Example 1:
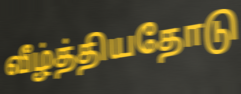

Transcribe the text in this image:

வீழ்த்தியதோடு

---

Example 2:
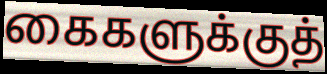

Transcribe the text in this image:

கைகளுக்குத்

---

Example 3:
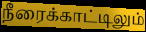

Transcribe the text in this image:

நீரைக்காட்டிலும்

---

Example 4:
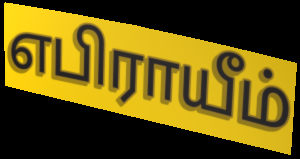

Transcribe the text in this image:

எபிராயீம்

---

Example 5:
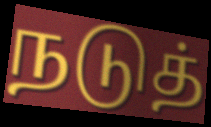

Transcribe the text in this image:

நடுத்